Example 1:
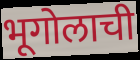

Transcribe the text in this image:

भूगोलाची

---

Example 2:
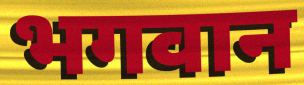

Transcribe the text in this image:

भगवान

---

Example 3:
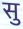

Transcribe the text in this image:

सु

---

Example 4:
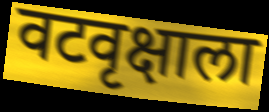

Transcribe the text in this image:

वटवृक्षाला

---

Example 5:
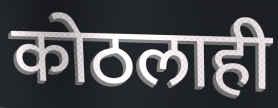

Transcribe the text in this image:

कोठलाही